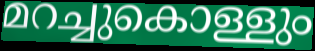
മറച്ചുകൊള്ളും